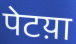
पेटय़ा